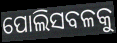
ପୋଲିସବଳକୁ